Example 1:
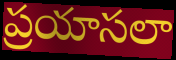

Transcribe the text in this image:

ప్రయాసలా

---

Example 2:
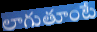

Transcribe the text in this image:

లాగుతూంటే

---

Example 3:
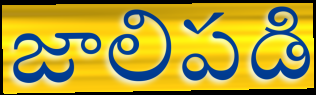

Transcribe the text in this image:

జాలిపడి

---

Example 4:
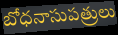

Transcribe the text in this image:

బోధనాసుపత్రులు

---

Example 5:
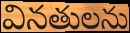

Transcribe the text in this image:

వినతులను